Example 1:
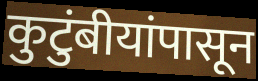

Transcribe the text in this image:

कुटुंबीयांपासून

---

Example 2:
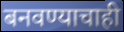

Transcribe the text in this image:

बनवण्याचाही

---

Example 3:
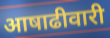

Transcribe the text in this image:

आषाढीवारी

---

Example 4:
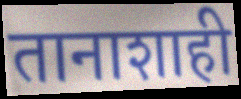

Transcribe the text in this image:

तानाशाही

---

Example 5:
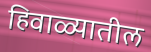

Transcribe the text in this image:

हिवाळ्यातील